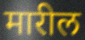
मारील